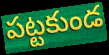
పట్టకుండ